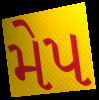
મેપ